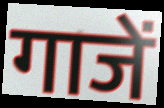
गाजें